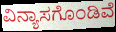
ವಿನ್ಯಾಸಗೊಂಡಿವೆ